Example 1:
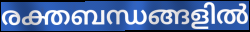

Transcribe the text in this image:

രക്തബന്ധങ്ങളിൽ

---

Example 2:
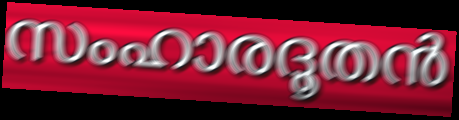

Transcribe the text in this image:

സംഹാരദൂതൻ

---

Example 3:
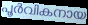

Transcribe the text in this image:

പൂർവികനായ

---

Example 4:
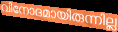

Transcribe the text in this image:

വിനോദമായിരുന്നില്ല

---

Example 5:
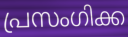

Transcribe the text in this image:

പ്രസംഗിക്ക